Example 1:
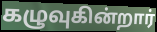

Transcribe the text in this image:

கழுவுகின்றார்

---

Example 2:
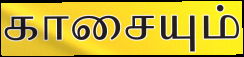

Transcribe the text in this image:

காசையும்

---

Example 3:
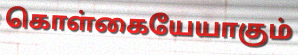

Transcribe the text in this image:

கொள்கையேயாகும்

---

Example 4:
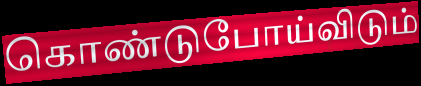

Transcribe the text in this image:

கொண்டுபோய்விடும்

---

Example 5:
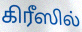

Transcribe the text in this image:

கிரீஸில்